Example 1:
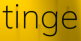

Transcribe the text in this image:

tinge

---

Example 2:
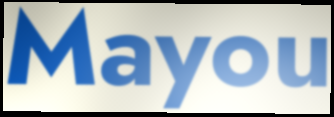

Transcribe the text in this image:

Mayou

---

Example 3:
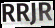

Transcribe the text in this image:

RRJR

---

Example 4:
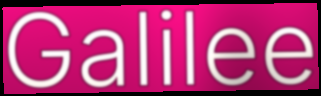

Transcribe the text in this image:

Galilee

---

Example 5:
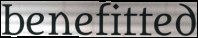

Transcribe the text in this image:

benefitted